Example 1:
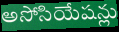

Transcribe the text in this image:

అసోసియేషన్లు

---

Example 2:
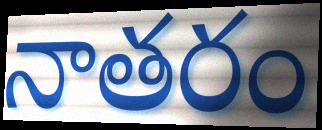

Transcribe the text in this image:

నాతరం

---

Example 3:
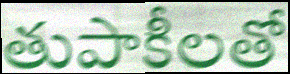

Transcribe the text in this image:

తుపాకీలతో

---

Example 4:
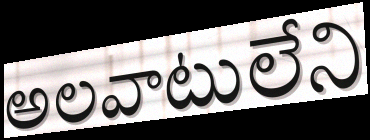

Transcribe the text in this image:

అలవాటులేని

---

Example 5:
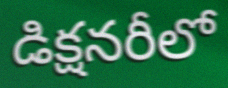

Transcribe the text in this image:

డిక్షనరీలో